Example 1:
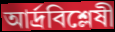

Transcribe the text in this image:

আর্দ্রবিশ্লেষী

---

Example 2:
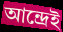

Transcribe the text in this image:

আন্দ্রেই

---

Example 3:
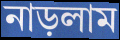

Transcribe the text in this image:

নাড়লাম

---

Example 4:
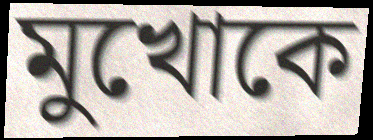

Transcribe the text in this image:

মুখোকে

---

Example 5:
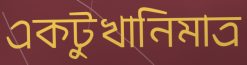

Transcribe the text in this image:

একটুখানিমাত্র